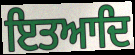
ਇਤਆਦਿ